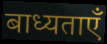
बाध्यताएँ